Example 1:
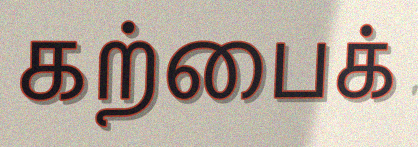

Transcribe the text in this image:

கற்பைக்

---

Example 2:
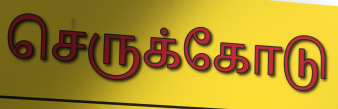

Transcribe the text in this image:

செருக்கோடு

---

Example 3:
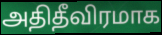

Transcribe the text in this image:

அதிதீவிரமாக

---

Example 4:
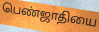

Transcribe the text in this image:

பெண்ஜாதியை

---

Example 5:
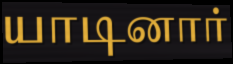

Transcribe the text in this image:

யாடினார்